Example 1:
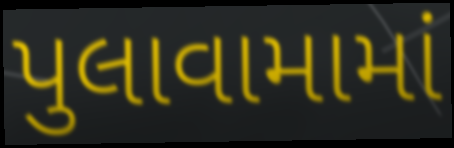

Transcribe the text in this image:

પુલાવામામાં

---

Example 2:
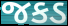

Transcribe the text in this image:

જકડ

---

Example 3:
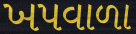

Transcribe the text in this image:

ખપવાળા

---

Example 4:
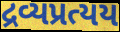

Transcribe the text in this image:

દ્રવ્યપ્રત્યય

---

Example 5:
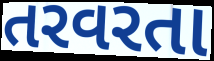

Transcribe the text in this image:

તરવરતા